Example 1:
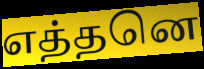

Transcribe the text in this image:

எத்தனெ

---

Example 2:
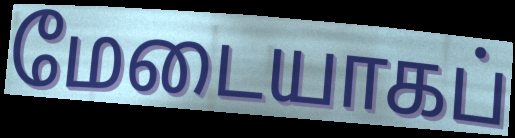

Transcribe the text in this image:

மேடையாகப்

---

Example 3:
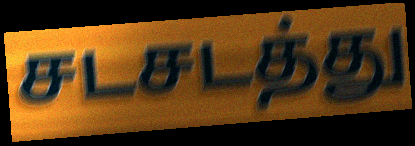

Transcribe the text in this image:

சடசடத்து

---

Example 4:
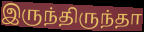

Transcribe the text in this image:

இருந்திருந்தா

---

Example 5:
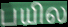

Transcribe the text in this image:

பயில